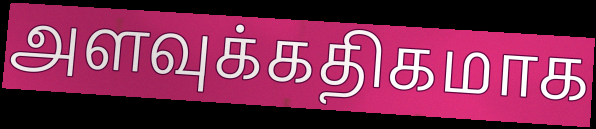
அளவுக்கதிகமாக